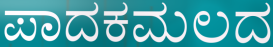
ಪಾದಕಮಲದ